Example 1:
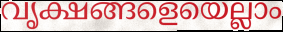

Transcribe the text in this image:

വൃക്ഷങ്ങളെയെല്ലാം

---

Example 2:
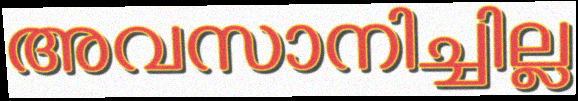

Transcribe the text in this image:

അവസാനിച്ചില്ല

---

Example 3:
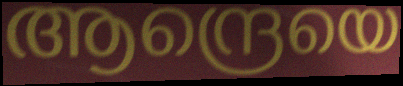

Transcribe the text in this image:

ആന്ദ്രെയെ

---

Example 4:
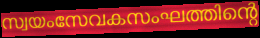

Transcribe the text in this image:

സ്വയംസേവകസംഘത്തിന്റെ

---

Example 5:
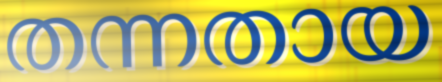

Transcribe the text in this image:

തന്നതായ